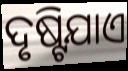
ଦୃଷ୍ଟିଯାଏ